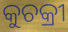
କୁଚକ୍ରୀ